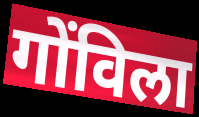
गोंविला